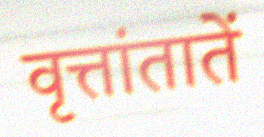
वृत्तांतातें